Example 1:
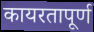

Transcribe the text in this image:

कायरतापूर्ण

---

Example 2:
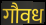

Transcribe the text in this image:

गौवध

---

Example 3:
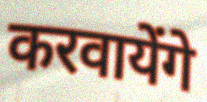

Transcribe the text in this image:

करवायेंगे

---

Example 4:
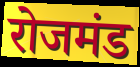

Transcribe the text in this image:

रोजमंड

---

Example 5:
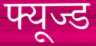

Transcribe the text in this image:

फ्यूज्ड